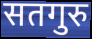
सतगुरु